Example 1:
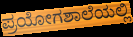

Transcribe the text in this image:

ಪ್ರಯೋಗಶಾಲೆಯಲ್ಲಿ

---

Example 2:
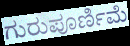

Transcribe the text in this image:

ಗುರುಪೂರ್ಣಿಮೆ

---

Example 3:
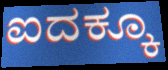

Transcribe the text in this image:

ಐದಕ್ಕೂ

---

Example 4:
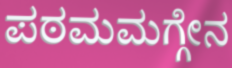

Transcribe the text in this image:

ಪಠಮಮಗ್ಗೇನ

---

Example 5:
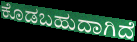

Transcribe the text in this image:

ಕೊಡಬಹುದಾಗಿದೆ